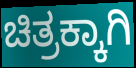
ಚಿತ್ರಕ್ಕಾಗಿ